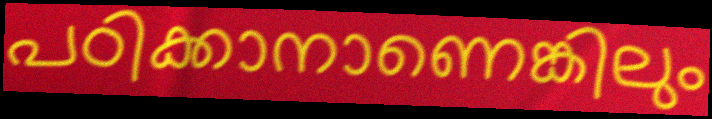
പഠിക്കാനാണെങ്കിലും